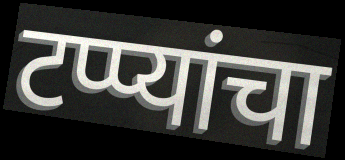
टप्प्यांचा